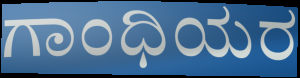
ಗಾಂಧಿಯರ